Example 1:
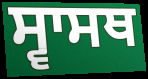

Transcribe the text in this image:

ਸ੍ਵਾਸਥ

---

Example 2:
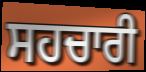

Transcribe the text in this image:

ਸਹਚਾਰੀ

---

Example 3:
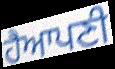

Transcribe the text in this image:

ਹੈਆਪਣੀ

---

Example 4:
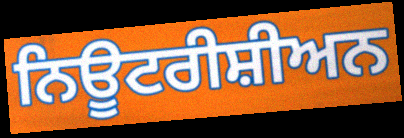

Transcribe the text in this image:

ਨਿਊਟਰੀਸ਼ੀਅਨ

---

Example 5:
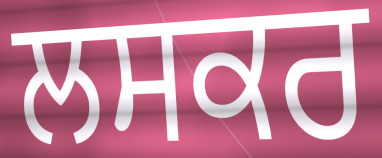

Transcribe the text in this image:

ਲਸਕਰ